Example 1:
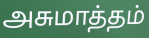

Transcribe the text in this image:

அசுமாத்தம்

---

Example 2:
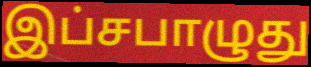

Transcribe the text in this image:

இப்சபாழுது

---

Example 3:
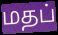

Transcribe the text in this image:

மதப்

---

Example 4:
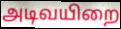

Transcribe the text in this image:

அடிவயிறை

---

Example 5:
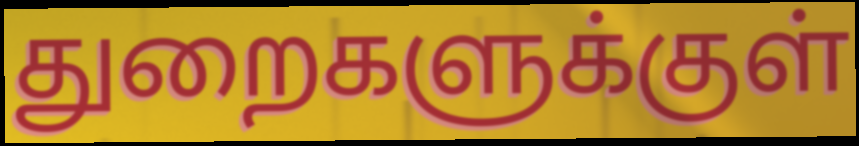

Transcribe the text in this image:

துறைகளுக்குள்